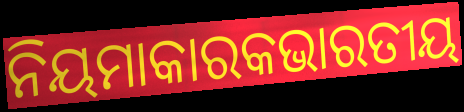
ନିୟମାକାରକଭାରତୀୟ